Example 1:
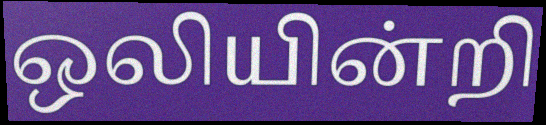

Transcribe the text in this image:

ஒலியின்றி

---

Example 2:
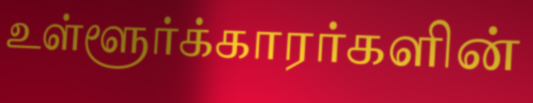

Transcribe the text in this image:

உள்ளூர்க்காரர்களின்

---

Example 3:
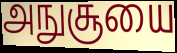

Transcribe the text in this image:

அநுசூயை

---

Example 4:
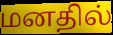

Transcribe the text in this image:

மனதில்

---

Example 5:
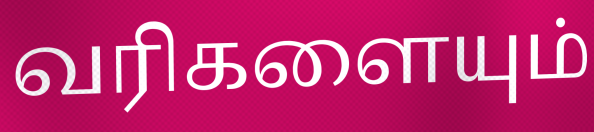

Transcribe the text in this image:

வரிகளையும்